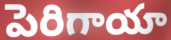
పెరిగాయా